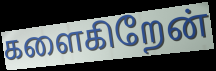
களைகிறேன்